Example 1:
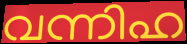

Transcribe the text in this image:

വന്നിഹ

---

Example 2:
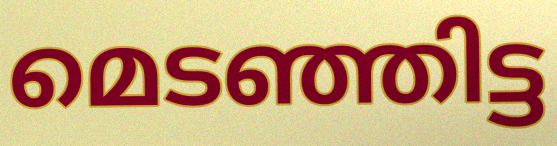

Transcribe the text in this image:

മെടഞ്ഞിട്ട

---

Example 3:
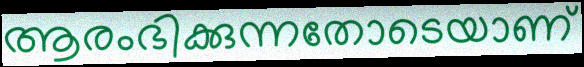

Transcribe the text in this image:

ആരംഭിക്കുന്നതോടെയാണ്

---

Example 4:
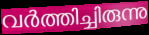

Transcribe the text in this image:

വർത്തിച്ചിരുന്നു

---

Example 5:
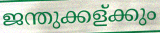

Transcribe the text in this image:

ജന്തുക്കള്ക്കും